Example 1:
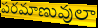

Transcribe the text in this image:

పరమాణువులా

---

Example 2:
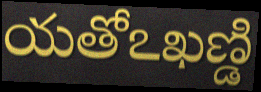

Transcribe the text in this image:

యతోఽఖణ్డి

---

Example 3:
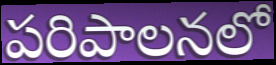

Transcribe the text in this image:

పరిపాలనలో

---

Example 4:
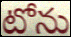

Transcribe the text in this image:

టోను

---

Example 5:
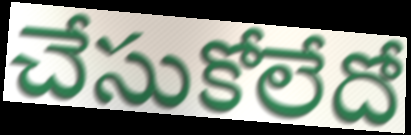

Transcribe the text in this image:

చేసుకోలేదో